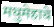
मधुमेहाचे